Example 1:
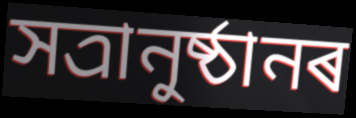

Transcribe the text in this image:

সত্ৰানুষ্ঠানৰ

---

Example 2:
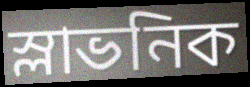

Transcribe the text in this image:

স্লাভনিক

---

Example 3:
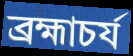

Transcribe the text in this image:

ব্ৰহ্মাচৰ্য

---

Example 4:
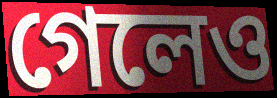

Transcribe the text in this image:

গেলেও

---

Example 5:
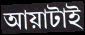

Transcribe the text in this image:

আয়াটাই